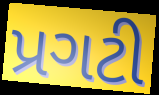
પ્રગટી